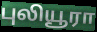
புலியூரா